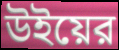
উইয়ের